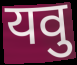
यवु